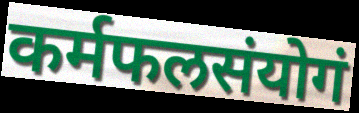
कर्मफलसंयोगं